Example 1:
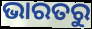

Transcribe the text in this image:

ଭାରତରୁ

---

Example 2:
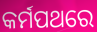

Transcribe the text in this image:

କର୍ମପଥରେ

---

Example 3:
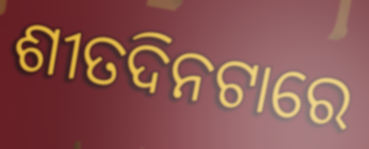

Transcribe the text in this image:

ଶୀତଦିନଟାରେ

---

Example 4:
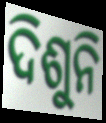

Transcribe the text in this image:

ଦିଶୁନି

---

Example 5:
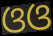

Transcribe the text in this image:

ଓଓ